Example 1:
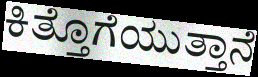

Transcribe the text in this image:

ಕಿತ್ತೊಗೆಯುತ್ತಾನೆ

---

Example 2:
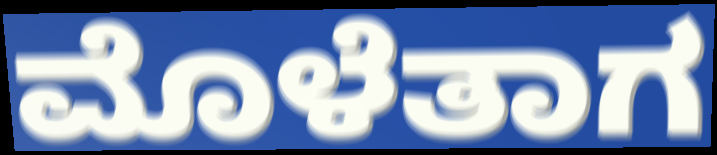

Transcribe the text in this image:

ಮೊಳೆತಾಗ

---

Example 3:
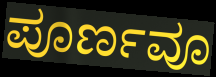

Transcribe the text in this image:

ಪೂರ್ಣವೂ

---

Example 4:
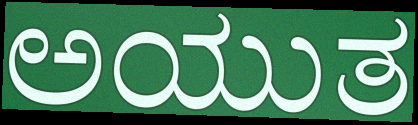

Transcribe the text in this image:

ಅಯುತ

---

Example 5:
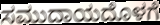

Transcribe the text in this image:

ಸಮುದಾಯದೊಳಗೆ